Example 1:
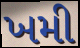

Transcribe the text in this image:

ખમી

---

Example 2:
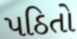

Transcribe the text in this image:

પઠિતો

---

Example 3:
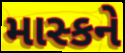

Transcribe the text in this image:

માસ્કને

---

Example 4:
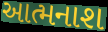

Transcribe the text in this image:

આત્મનાશ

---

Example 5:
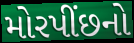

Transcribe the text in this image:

મોરપીંછનો